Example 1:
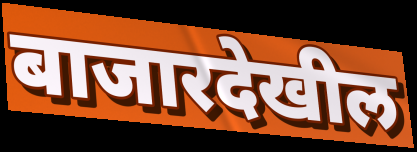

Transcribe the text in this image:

बाजारदेखील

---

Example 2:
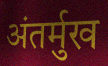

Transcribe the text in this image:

अंतर्मुख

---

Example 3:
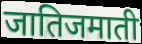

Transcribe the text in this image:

जातिजमाती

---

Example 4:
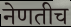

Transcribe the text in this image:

नेणतीच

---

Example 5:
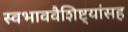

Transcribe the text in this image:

स्वभाववैशिष्ट्यांसह